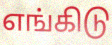
எங்கிடு